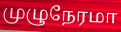
முழுநேரமா